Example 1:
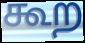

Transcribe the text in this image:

கூற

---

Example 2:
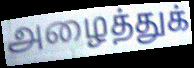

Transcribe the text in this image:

அழைத்துக்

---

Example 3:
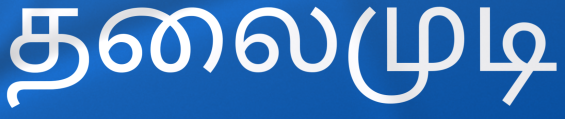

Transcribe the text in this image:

தலைமுடி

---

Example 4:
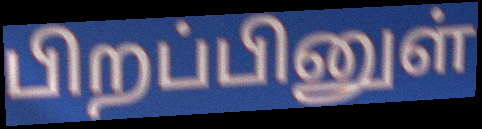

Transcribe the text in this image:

பிறப்பினுள்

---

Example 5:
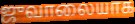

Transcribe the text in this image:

ஜுவாலையாக